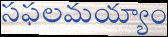
సఫలమయ్యాం